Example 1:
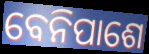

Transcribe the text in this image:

ବେନିପାଶେ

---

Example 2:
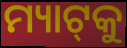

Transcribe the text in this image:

ମ୍ୟାଟ୍‌କୁ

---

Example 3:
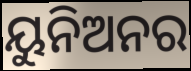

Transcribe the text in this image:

ୟୁନିଅନର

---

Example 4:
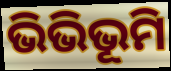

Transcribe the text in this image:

ଭିଭିଭୂମି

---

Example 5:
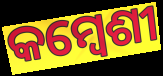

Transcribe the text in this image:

କମ୍ବେଶୀ